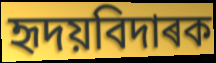
হৃদয়বিদাৰক